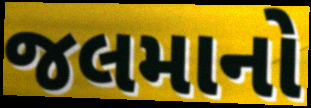
જલમાનો